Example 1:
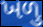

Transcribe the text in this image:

ખળુ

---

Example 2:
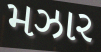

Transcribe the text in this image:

મઝાર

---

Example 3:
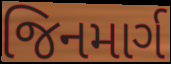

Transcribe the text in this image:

જિનમાર્ગ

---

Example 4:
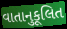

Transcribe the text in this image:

વાતાનુકૂલિત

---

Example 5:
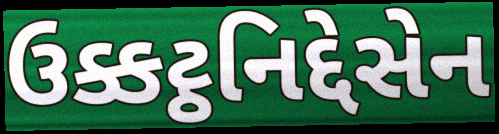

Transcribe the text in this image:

ઉક્કટ્ઠનિદ્દેસેન